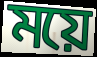
ময়ে